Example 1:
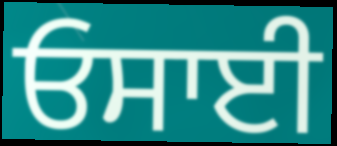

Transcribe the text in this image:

ਓਸਾਈ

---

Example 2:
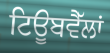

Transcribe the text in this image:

ਟਿਊੁਬਵੈੱਲਾਂ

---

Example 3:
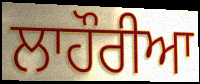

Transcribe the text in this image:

ਲਾਹੌਰੀਆ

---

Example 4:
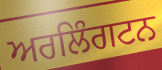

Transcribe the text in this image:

ਅਰਲਿੰਗਟਨ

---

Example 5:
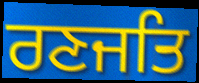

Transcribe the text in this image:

ਰਣਜਤਿ